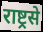
राष्ट्रसे